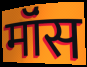
मॉंस